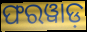
ଫରୱାଡ଼